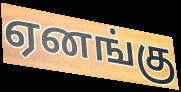
ஏனங்கு